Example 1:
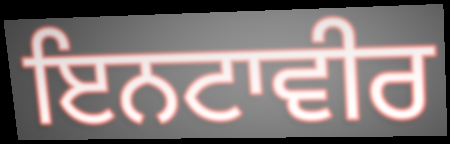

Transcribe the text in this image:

ਇਨਟਾਵੀਰ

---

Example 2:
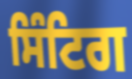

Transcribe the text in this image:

ਸਿੰਟਿਗ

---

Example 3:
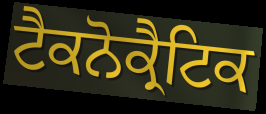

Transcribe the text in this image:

ਟੈਕਨੋਕ੍ਰੈਟਿਕ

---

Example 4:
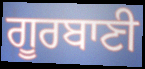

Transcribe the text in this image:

ਗੂਰਬਾਣੀ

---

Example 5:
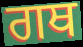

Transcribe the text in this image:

ਗਥ